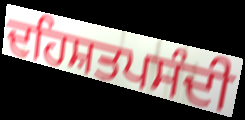
ਦਹਿਸ਼ਤਪਸੰਦੀ